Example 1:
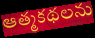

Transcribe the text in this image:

ఆత్మకథలను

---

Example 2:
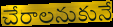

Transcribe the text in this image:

చేరాలనుకునే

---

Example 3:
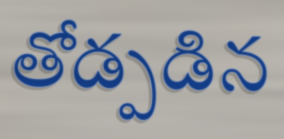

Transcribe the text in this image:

తోడ్పడిన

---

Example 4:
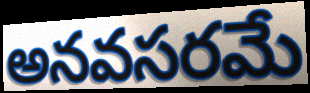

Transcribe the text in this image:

అనవసరమే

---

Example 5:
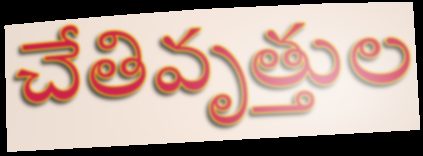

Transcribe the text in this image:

చేతివృత్తుల